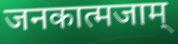
जनकात्मजाम्